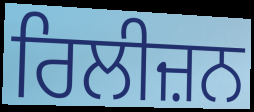
ਰਿਲੀਜ਼ਨ